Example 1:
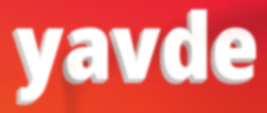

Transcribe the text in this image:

yavde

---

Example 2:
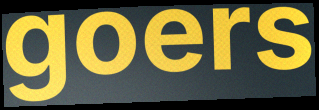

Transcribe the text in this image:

goers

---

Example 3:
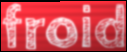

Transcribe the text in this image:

froid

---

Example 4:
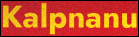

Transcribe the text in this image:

Kalpnanu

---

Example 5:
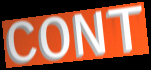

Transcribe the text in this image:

CONT